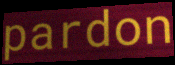
pardon